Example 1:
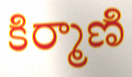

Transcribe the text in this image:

కిర్మాణి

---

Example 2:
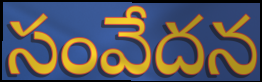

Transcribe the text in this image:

సంవేదన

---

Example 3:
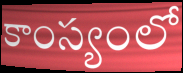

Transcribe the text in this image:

కాంస్యంలో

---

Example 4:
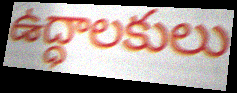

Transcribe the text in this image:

ఉద్ధాలకులు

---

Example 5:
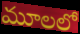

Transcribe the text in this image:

మూలలో